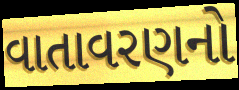
વાતાવરણનો